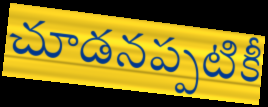
చూడనప్పటికీ